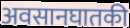
अवसानघातकी